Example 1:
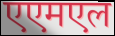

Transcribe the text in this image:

एएमएल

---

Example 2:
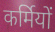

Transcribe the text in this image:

कर्मियों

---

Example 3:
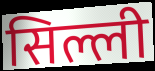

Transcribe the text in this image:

सिल्ली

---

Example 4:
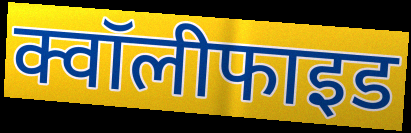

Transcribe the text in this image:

क्वॉलीफाइड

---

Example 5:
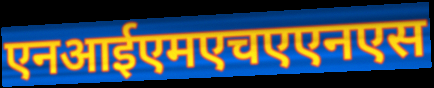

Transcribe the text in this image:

एनआईएमएचएएनएस